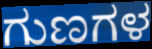
ಗುಣಗಳ